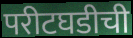
परीटघडीची